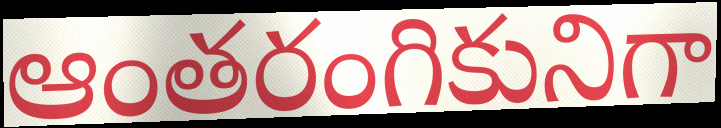
ఆంతరంగికునిగా